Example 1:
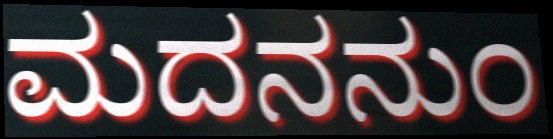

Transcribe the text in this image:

ಮದನನುಂ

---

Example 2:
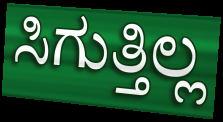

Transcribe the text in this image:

ಸಿಗುತ್ತಿಲ್ಲ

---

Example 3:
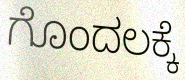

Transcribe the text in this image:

ಗೊಂದಲಕ್ಕೆ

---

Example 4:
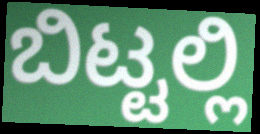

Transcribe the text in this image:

ಬಿಟ್ಟಲ್ಲಿ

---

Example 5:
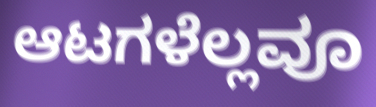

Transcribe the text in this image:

ಆಟಗಳೆಲ್ಲವೂ